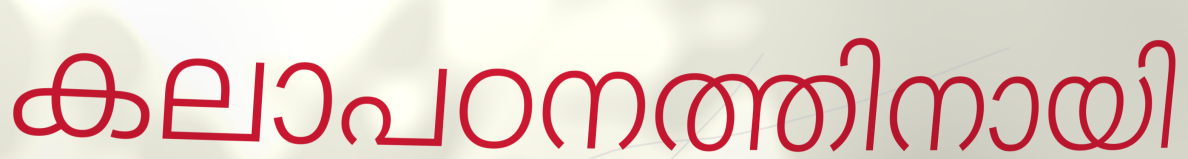
കലാപഠനത്തിനായി